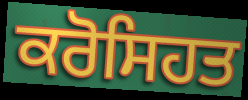
ਕਰੋਸਿਹਤ